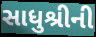
સાધુશ્રીની